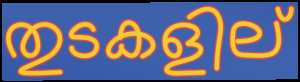
തുടകളില്